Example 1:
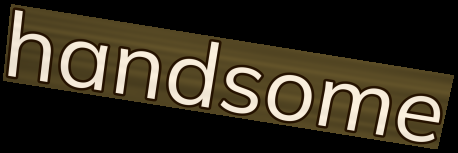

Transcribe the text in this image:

handsome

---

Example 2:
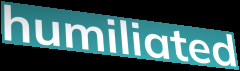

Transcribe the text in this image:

humiliated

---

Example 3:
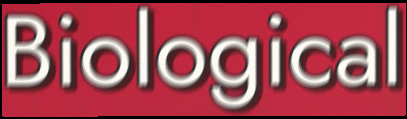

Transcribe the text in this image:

Biological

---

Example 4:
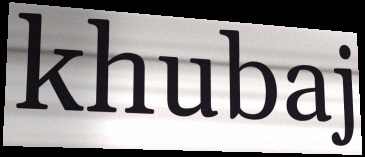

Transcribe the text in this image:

khubaj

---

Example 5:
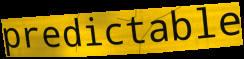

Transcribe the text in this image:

predictable